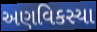
અણવિકસ્યા